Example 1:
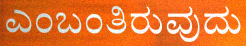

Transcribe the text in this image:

ಎಂಬಂತಿರುವುದು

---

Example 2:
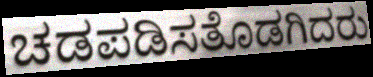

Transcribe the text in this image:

ಚಡಪಡಿಸತೊಡಗಿದರು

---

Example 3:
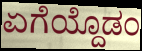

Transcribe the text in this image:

ಏಗೆಯ್ದೊಡಂ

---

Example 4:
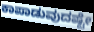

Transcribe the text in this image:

ಕಾಪಾಡುವುದಷ್ಟೇ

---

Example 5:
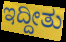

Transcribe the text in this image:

ಇದ್ದೀತು